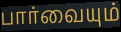
பார்வையும்